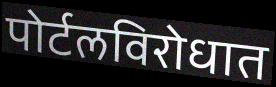
पोर्टलविरोधात